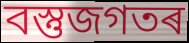
বস্তুজগতৰ